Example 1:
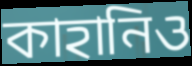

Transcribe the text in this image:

কাহানিও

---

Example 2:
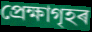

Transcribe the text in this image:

প্ৰেক্ষাগৃহৰ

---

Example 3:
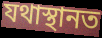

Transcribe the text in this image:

যথাস্থানত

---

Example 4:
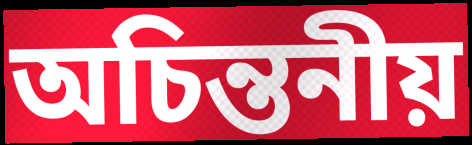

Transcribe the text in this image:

অচিন্তনীয়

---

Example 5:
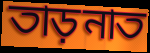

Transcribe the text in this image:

তাড়নাত